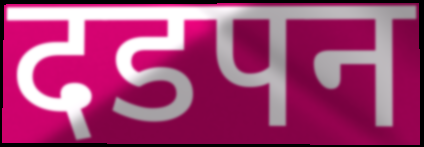
दडपन